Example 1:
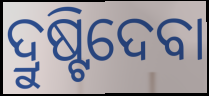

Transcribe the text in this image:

ଦ୍ରୁଷ୍ଟିଦେବା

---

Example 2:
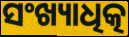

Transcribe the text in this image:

ସଂଖ୍ୟାଧିତ୍କ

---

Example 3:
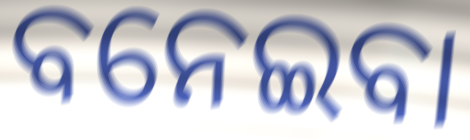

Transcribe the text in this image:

ବନେଇବା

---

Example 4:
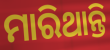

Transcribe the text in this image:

ମାରିଥାନ୍ତି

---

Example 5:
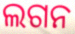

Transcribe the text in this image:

ଲଗନ